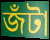
জঁটা